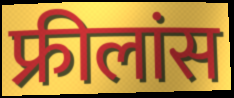
फ्रीलांस